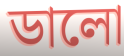
ডালো